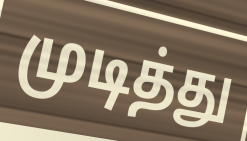
முடித்து